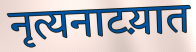
नृत्यनाटय़ात